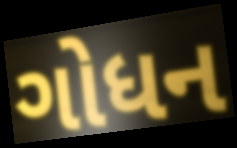
ગોધન